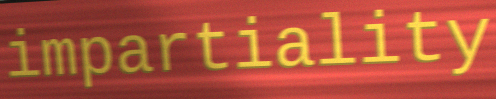
impartiality